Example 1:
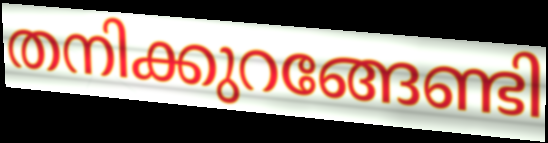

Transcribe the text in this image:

തനിക്കുറങ്ങേണ്ടി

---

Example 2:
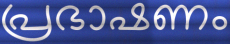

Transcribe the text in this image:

പ്രഭാഷണം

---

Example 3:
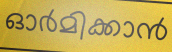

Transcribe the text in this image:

ഓർമിക്കാൻ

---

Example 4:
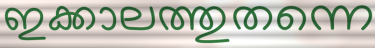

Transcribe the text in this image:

ഇക്കാലത്തുതന്നെ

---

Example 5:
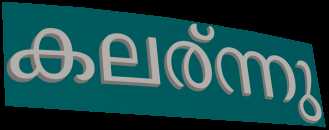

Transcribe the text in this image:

കലര്ന്നു